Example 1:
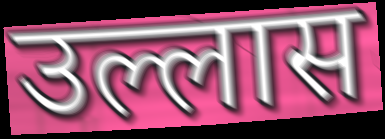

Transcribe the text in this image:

उल्‍लास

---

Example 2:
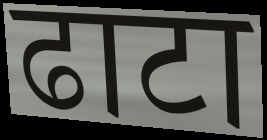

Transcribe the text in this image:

ढाटा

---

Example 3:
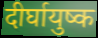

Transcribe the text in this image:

दीर्घायुष्क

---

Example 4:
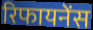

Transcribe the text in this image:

रिफायनेंस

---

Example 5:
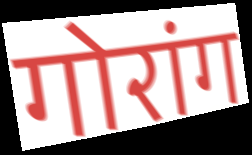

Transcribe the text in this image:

गोरांग